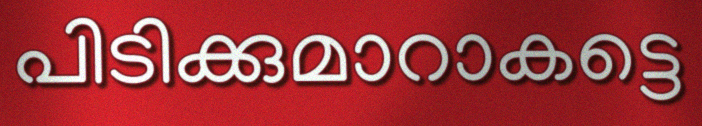
പിടിക്കുമാറാകട്ടെ